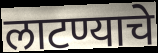
लाटण्याचे